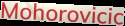
Mohorovicic